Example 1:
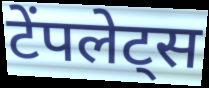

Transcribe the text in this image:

टेंपलेट्स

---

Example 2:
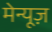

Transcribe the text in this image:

मेन्यूज़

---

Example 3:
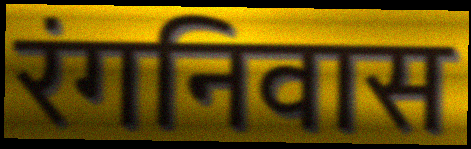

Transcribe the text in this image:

रंगनिवास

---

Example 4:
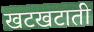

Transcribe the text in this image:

खटखटाती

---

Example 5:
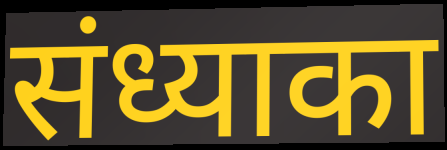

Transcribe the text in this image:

संध्याका